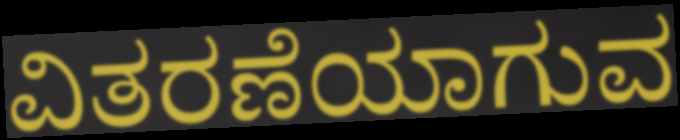
ವಿತರಣೆಯಾಗುವ